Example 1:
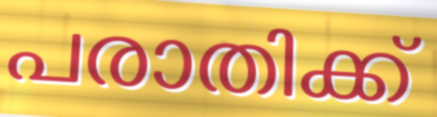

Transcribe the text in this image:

പരാതിക്ക്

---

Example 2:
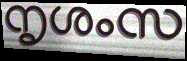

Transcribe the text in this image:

നൃശംസ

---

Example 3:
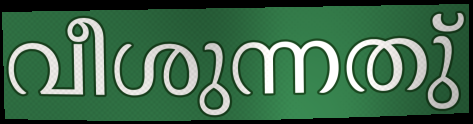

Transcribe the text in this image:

വീശുന്നതു്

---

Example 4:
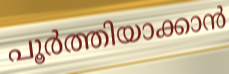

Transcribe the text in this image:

പൂർത്തിയാക്കാൻ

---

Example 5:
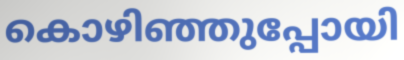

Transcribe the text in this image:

കൊഴിഞ്ഞുപ്പോയി